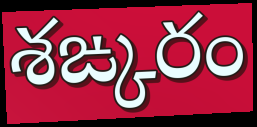
శఙ్కరం